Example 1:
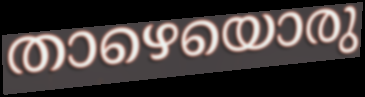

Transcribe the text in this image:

താഴെയൊരു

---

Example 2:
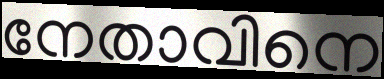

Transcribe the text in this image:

നേതാവിനെ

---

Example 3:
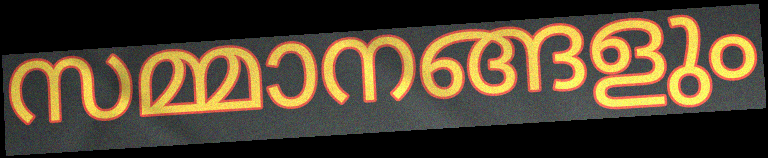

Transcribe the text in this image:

സമ്മാനങ്ങളും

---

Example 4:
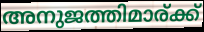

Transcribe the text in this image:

അനുജത്തിമാര്ക്ക്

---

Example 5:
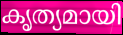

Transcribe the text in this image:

കൃത്യമായി